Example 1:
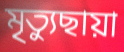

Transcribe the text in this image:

মৃত্যুছায়া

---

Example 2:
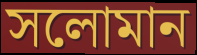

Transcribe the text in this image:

সলোমান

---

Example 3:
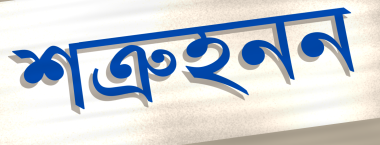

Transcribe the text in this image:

শত্রুহনন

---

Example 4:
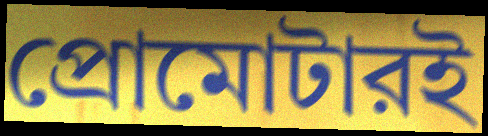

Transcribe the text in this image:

প্রোমোটারই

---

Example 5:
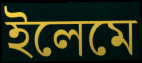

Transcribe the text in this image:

ইলেমে